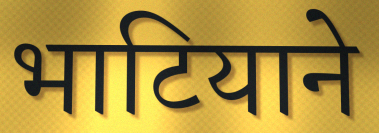
भाटियाने